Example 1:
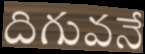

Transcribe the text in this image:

దిగువనే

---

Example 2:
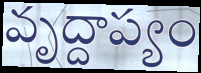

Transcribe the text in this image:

వృద్దాప్యం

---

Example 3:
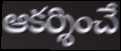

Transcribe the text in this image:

ఆకర్శించే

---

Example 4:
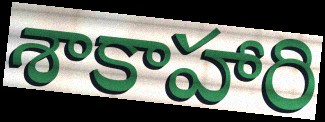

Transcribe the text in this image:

శాకాహారి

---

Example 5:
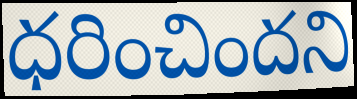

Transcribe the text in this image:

ధరించిందని